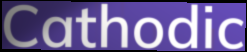
Cathodic